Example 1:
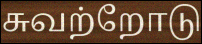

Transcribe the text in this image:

சுவற்றோடு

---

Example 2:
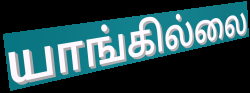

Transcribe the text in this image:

யாங்கில்லை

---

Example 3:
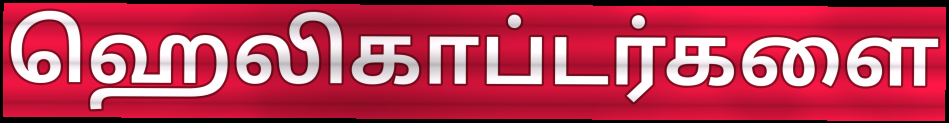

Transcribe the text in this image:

ஹெலிகாப்டர்களை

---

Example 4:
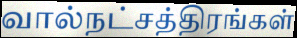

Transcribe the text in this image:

வால்நட்சத்திரங்கள்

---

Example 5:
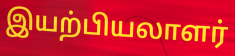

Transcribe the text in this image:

இயற்பியலாளர்